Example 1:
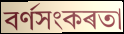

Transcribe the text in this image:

বৰ্ণসংকৰতা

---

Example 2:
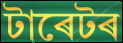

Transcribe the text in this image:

টাৰেটৰ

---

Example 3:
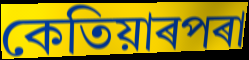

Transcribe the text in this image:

কেতিয়াৰপৰা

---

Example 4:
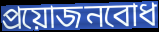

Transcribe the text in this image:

প্ৰয়োজনবোধ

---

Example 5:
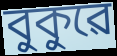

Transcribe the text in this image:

বুকুৱে